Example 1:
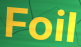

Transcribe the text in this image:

Foil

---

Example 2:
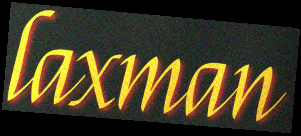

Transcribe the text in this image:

laxman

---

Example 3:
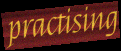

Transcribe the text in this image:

practising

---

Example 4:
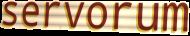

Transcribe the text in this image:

servorum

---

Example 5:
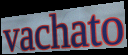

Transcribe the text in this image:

vachato